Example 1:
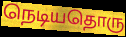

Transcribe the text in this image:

நெடியதொரு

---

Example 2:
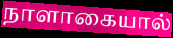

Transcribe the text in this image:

நாளாகையால்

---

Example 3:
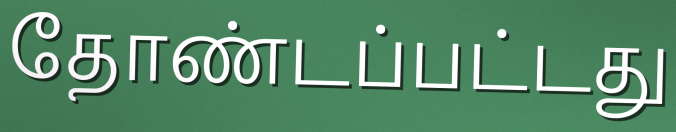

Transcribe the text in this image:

தோண்டப்பட்டது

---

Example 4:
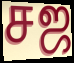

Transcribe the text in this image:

சஜ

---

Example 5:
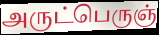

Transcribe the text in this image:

அருட்பெருஞ்